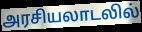
அரசியலாடலில்